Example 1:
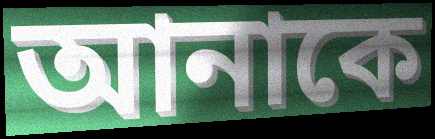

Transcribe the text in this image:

আনাকে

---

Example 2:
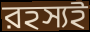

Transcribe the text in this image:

রহস্যই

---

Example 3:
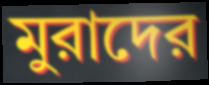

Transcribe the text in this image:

মুরাদের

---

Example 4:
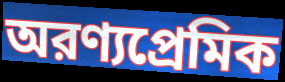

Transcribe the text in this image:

অরণ্যপ্রেমিক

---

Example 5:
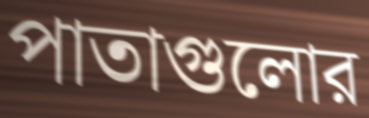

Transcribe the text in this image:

পাতাগুলোর